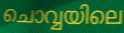
ചൊവ്വയിലെ